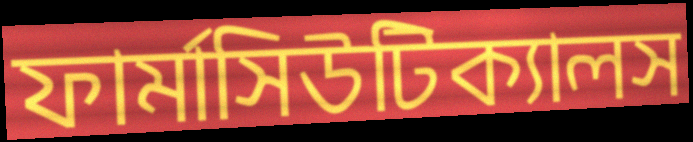
ফার্মাসিউটিক্যালস